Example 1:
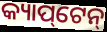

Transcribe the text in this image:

କ୍ୟାପ୍‌ଟେନ୍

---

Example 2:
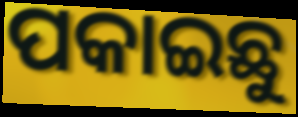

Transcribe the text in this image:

ପକାଇଛୁ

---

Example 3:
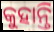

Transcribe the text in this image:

କୁହାନ୍ତି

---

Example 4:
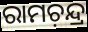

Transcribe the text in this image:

ରାମଚ଼ନ୍ଦ୍ର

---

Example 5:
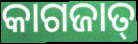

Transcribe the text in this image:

କାଗଜାତ୍